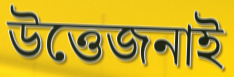
উত্তেজনাই